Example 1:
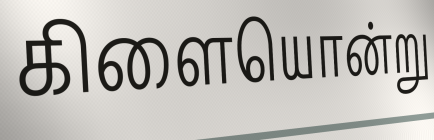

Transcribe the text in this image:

கிளையொன்று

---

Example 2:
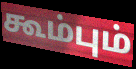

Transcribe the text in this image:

கூம்பும்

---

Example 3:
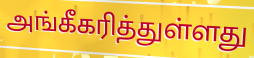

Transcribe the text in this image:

அங்கீகரித்துள்ளது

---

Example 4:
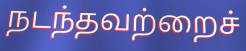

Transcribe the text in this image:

நடந்தவற்றைச்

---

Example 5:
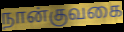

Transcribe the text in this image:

நான்குவகை